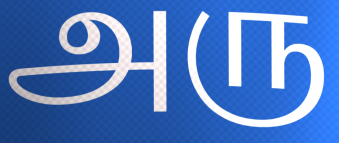
அரு